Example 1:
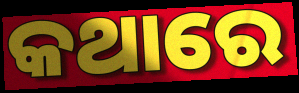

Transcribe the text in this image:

କଥାରେ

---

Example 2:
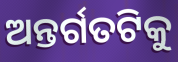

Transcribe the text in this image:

ଅନ୍ତର୍ଗତଟିକୁ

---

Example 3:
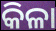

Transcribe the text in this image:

କିଳା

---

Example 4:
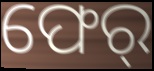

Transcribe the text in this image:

ଫେର୍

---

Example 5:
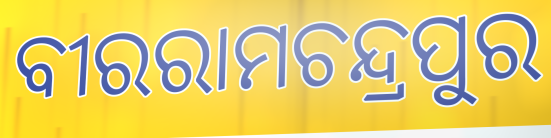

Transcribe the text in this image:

ବୀରରାମଚନ୍ଦ୍ରପୁର